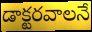
డాక్టరవాలనే